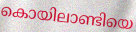
കൊയിലാണ്ടിയെ